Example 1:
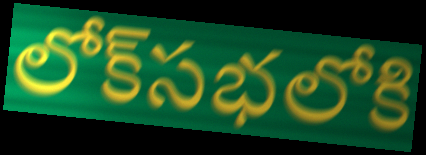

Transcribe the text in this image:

లోక్‌సభలోకి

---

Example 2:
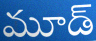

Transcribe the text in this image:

మూడ్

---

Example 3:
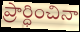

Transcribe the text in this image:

ప్రార్ధించినా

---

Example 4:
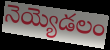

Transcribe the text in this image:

నెయ్యెడలం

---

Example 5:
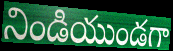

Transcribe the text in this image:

నిండియుండగా